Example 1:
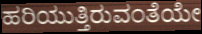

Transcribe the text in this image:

ಹರಿಯುತ್ತಿರುವಂತೆಯೇ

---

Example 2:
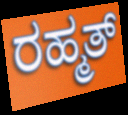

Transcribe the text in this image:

ರಹ್ಮತ್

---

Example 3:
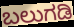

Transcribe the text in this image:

ಬಲುಗಡಿ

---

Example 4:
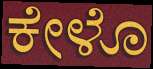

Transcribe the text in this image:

ಕೇಳೊ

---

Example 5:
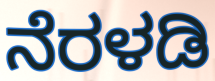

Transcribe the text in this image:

ನೆರಳಡಿ